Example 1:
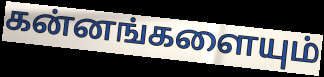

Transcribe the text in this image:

கன்னங்களையும்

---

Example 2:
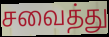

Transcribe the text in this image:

சவைத்து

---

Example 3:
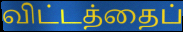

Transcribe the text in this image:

விட்டத்தைப்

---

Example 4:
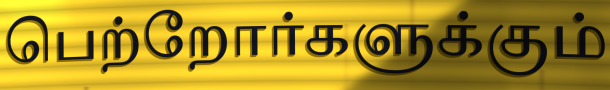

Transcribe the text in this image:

பெற்றோர்களுக்கும்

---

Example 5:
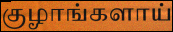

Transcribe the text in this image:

குழாங்களாய்